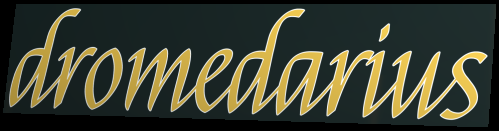
dromedarius